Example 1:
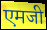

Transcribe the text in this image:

एमजी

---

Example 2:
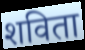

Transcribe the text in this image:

शविता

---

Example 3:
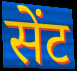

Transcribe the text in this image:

सेंट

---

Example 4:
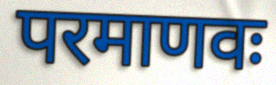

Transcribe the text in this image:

परमाणवः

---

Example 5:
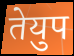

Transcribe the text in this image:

तेयुप